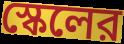
স্কেলের